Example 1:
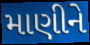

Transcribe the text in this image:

માણીને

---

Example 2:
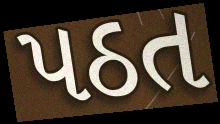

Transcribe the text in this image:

પઠત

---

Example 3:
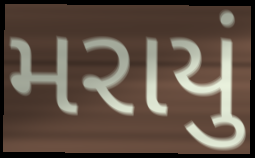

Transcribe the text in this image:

મરાયું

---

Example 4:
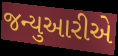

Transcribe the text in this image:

જન્યુઆરીએ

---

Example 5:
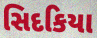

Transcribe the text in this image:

સિદકિયા